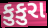
કુકુરા